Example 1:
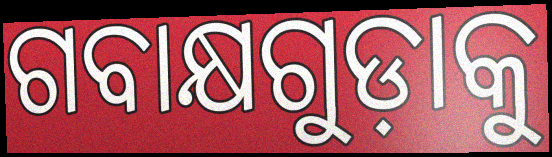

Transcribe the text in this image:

ଗବାକ୍ଷଗୁଡ଼ାକୁ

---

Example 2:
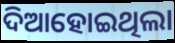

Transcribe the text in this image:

ଦିଆହୋଇଥିଲା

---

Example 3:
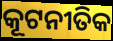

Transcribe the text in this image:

କୂଟନୀତିକ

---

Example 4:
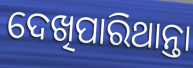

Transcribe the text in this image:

ଦେଖିପାରିଥାନ୍ତା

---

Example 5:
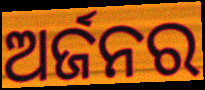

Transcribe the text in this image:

ଅର୍ଜନର